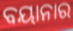
ବୟାନାର